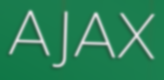
AJAX